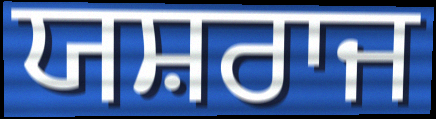
ਯਸ਼ਰਾਜ